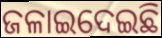
ଜଳାଇଦେଇଛି